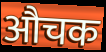
औचक